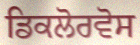
ਡਿਕਲੋਰਵੋਸ